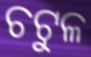
ଚଟୁଳ